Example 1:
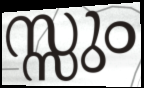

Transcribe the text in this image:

സ്സും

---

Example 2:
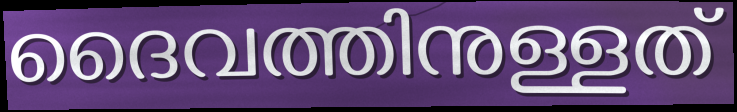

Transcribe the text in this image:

ദൈവത്തിനുള്ളത്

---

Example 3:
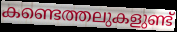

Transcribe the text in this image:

കണ്ടെത്തലുകളുണ്ട്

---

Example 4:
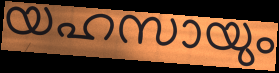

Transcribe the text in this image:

യഹസായും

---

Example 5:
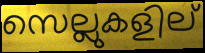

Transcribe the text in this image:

സെല്ലുകളില്